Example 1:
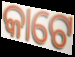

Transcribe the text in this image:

କାଟେ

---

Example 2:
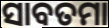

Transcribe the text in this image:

ସାବତମା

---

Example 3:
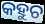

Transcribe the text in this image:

କହୁଚ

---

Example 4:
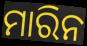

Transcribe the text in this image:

ମାରିନ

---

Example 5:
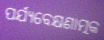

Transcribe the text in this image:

ପର୍ଯ୍ୟବେକ୍ଷଣାତ୍ମକ